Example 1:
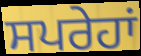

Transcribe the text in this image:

ਸਪਰੇਹਾਂ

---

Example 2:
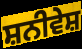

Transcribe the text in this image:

ਸ਼ਨੀਵੇਸ਼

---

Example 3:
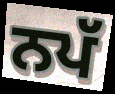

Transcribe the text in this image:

ਨਪੱ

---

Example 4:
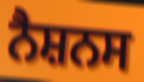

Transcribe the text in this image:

ਨੈਸ਼ਨਸ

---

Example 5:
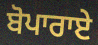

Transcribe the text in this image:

ਬੋਪਾਰਾਏ